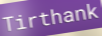
Tirthank